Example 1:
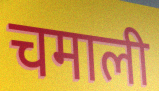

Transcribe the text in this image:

चमाली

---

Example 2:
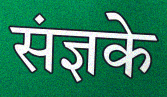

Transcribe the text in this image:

संज्ञके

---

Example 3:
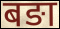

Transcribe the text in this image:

बङा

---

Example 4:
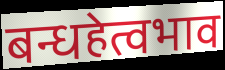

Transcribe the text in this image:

बन्धहेत्वभाव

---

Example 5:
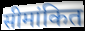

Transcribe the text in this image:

सीमांकित